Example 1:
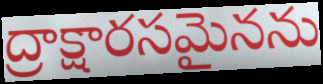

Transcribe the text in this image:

ద్రాక్షారసమైనను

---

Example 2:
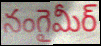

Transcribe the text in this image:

నంగైమీర్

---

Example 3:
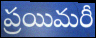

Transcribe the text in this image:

ప్రయిమరీ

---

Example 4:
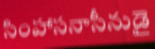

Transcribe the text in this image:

సింహాసనాసీనుడై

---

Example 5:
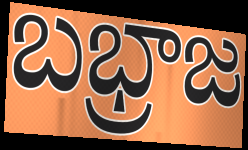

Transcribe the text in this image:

బభ్రాజ